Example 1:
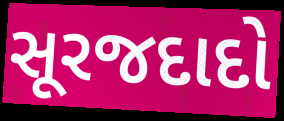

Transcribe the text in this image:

સૂરજદાદો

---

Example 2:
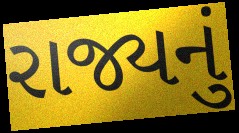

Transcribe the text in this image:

રાજ્યનું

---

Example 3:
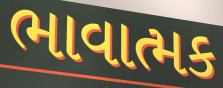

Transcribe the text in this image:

ભાવાત્મક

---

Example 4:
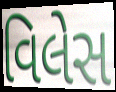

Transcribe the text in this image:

વિલેસ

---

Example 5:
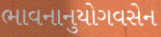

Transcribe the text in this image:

ભાવનાનુયોગવસેન